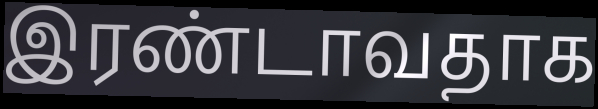
இரண்டாவதாக